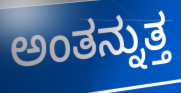
ಅಂತನ್ನುತ್ತ